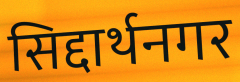
सिद्दार्थनगर